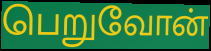
பெறுவோன்